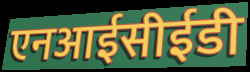
एनआईसीईडी